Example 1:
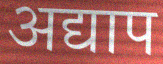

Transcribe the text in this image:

अद्याप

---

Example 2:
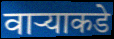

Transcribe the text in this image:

वाऱ्याकडे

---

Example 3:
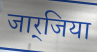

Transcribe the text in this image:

जार्जिया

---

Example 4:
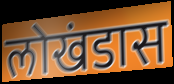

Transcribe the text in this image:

लोखंडास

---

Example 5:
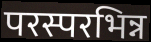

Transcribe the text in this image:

परस्परभिन्न